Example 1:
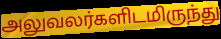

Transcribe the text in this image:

அலுவலர்களிடமிருந்து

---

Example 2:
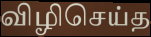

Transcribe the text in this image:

விழிசெய்த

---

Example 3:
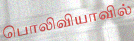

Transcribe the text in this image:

பொலிவியாவில்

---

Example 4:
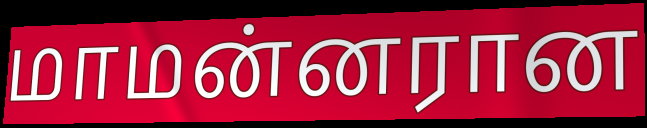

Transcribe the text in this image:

மாமன்னரான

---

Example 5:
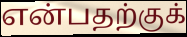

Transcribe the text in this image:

என்பதற்குக்